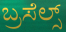
ಬ್ರಸೆಲ್ಸ್